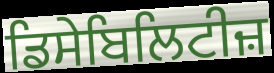
ਡਿਸੇਬਿਲਿਟੀਜ਼